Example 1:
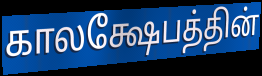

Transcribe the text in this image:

காலக்ஷேபத்தின்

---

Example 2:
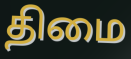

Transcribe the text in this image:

திமை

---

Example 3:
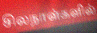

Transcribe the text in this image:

சிலநாள்களில்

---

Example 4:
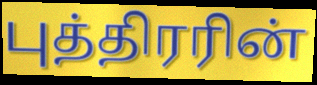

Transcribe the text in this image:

புத்திரரின்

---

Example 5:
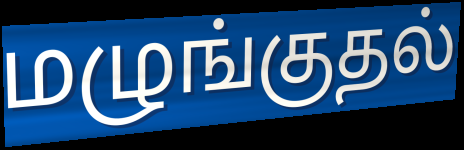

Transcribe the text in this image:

மழுங்குதல்